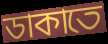
ডাকাতে